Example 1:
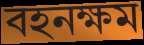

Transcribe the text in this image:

বহনক্ষম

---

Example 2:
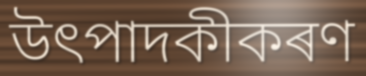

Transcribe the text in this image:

উৎপাদকীকৰণ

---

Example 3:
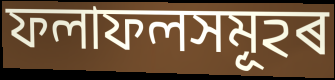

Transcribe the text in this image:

ফলাফলসমূহৰ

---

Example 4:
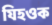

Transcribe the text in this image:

যিহওক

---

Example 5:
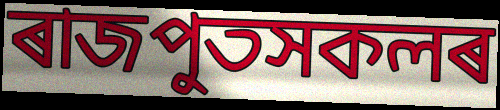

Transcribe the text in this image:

ৰাজপুতসকলৰ